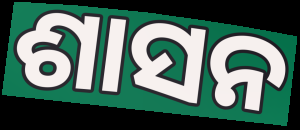
ଶାସନ